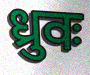
ध्रुवः